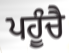
ਪਹੂੰਚੈ